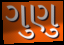
ગુણુ